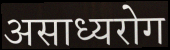
असाध्यरोग